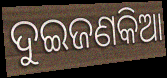
ଦୁଇଜଣକିଆ